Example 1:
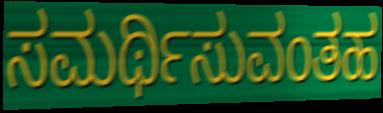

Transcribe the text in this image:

ಸಮರ್ಥಿಸುವಂತಹ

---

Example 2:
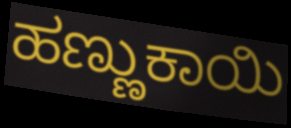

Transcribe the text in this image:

ಹಣ್ಣುಕಾಯಿ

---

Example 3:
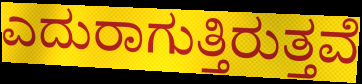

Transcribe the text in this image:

ಎದುರಾಗುತ್ತಿರುತ್ತವೆ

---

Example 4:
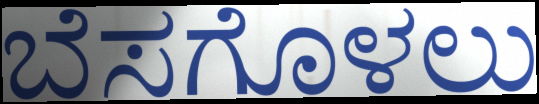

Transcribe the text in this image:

ಬೆಸಗೊಳಲು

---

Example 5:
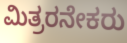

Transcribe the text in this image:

ಮಿತ್ರರನೇಕರು